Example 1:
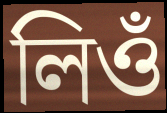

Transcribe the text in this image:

লিওঁ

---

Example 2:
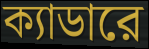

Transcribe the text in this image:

ক্যাডারে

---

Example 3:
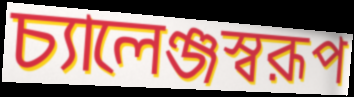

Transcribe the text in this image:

চ্যালেঞ্জস্বরূপ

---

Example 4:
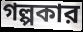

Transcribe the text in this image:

গল্পকার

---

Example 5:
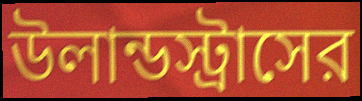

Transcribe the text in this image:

উলান্ডস্ট্রাসের